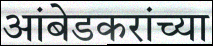
आंबेडकरांच्या